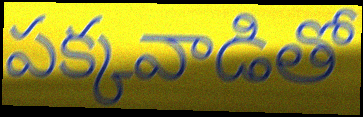
పక్కవాడితో